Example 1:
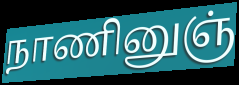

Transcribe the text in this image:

நாணினுஞ்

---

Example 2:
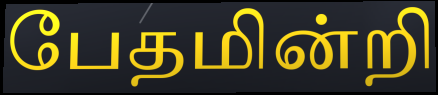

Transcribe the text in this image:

பேதமின்றி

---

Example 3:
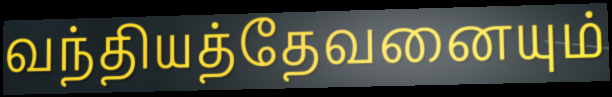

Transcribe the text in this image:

வந்தியத்தேவனையும்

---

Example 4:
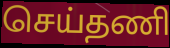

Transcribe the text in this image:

செய்தணி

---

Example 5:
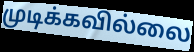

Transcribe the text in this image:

முடிக்கவில்லை